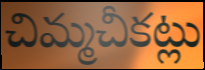
చిమ్మచీకట్లు